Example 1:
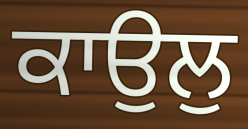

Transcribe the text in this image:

ਕਾਉਲੁ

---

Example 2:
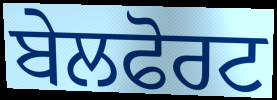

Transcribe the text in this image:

ਬੇਲਫੋਰਟ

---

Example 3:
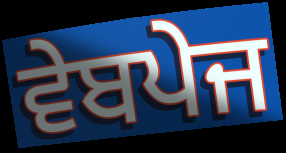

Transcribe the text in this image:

ਵੇਬਪੇਜ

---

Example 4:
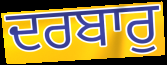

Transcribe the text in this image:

ਦਰਬਾਰੁ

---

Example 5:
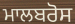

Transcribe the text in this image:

ਮਾਲਬਰੋਸ